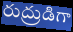
రుద్రుడిగా